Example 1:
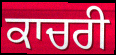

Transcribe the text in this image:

ਕਾਚਰੀ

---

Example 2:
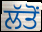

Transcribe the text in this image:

ਲੱਤੋਂ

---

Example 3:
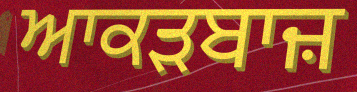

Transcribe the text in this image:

ਆਕੜਬਾਜ਼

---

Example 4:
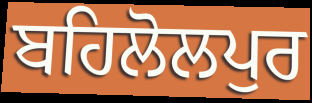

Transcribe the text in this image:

ਬਹਿਲੋਲਪੁਰ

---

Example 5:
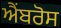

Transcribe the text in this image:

ਐਂਬਰੋਸ